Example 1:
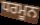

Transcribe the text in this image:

ਧਰਮੂਨ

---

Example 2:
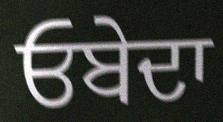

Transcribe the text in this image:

ਓਬੇਦਾ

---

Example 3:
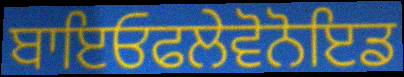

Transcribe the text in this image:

ਬਾਇਓਫਲੇਵੋਨੋਇਡ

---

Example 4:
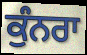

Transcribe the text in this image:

ਕੁੰਨਰਾ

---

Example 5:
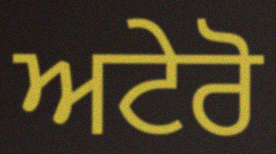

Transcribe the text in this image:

ਅਟੇਰੋ